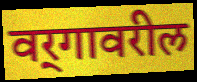
वर्गावरील